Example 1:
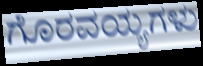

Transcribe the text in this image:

ಗೊರವಯ್ಯಗಳು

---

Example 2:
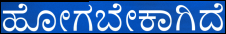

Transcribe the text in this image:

ಹೋಗಬೇಕಾಗಿದೆ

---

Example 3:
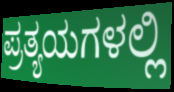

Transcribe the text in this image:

ಪ್ರತ್ಯಯಗಳಲ್ಲಿ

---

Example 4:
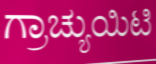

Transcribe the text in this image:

ಗ್ರಾಚ್ಯುಯಿಟಿ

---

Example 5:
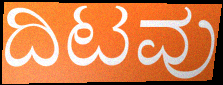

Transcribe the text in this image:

ದಿಟವು